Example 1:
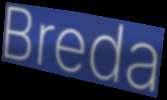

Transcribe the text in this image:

Breda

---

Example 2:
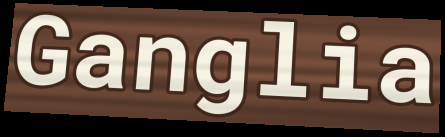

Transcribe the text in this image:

Ganglia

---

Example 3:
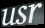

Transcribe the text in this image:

usr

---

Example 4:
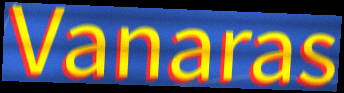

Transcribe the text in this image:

Vanaras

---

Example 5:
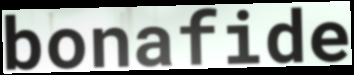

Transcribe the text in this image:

bonafide